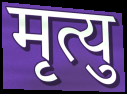
मृत्यु